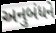
અનુબંધને